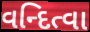
વન્દિત્વા